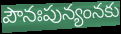
పౌనఃపున్యంనకు